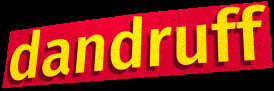
dandruff